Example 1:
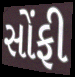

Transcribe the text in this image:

સોંફી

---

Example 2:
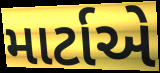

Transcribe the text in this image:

માર્ટાએ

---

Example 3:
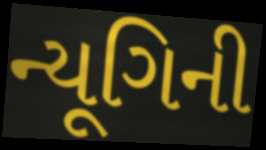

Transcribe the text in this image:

ન્યૂગિની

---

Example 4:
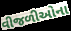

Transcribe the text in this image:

વીજળીઓના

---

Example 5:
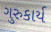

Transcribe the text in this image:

ગુરુકાર્ય